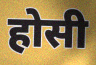
होसी